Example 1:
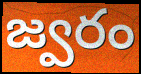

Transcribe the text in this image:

జ్వరం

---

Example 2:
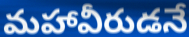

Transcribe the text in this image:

మహావీరుడనే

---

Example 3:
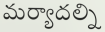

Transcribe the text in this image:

మర్యాదల్ని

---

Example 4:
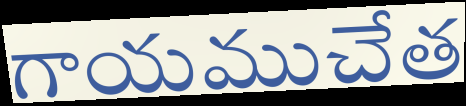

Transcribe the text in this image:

గాయముచేత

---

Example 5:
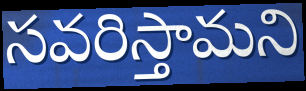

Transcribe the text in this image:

సవరిస్తామని